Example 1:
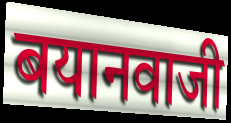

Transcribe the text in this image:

बयानवाजी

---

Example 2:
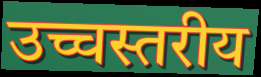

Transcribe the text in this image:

उच्चस्तरीय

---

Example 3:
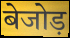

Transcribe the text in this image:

बेजोड़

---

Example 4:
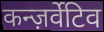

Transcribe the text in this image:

कन्ज़र्वेटिव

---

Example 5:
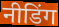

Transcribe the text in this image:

नीडिंग